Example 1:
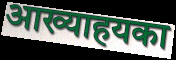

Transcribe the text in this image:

आख्याहयका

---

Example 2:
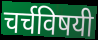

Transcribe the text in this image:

चर्चविषयी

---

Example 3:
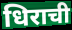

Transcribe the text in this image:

धिराची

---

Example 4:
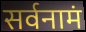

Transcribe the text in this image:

सर्वनामं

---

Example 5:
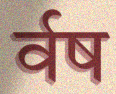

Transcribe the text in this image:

र्वष